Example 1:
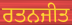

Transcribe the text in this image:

ਰਤਨਜੀਤ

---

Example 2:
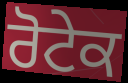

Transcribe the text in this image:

ਰੋਟੇਕ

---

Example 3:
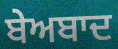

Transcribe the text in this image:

ਬੇਅਬਾਦ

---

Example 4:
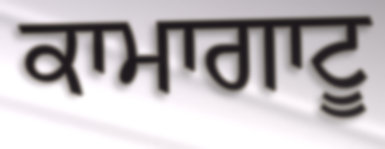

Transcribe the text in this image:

ਕਾਮਾਗਾਟੂ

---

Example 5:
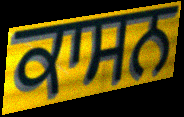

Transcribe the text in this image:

ਕਾਸਨ